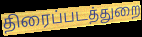
திரைப்படத்துறை